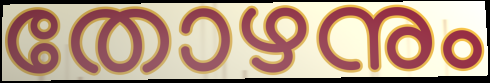
തോഴനും